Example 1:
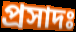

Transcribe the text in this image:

প্রসাদঃ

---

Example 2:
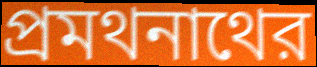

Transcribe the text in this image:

প্রমথনাথের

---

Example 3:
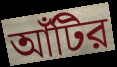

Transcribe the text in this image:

আঁটির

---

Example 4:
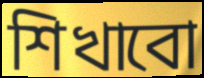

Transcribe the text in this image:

শিখাবো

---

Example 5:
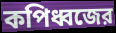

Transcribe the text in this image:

কপিধ্বজের